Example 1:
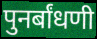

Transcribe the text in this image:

पुनर्बांधणी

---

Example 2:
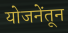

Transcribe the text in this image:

योजनेंतून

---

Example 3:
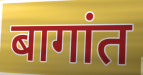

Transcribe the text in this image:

बागांत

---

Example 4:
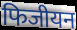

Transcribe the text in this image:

फिजीयन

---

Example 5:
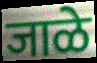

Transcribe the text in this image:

जाळे